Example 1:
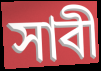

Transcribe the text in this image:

সাবী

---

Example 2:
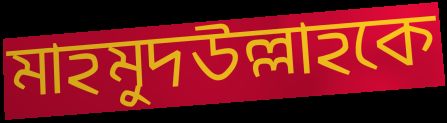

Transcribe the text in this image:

মাহমুদউল্লাহকে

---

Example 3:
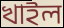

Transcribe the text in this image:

খাইল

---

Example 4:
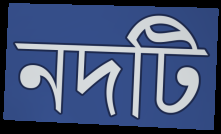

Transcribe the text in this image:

নদটি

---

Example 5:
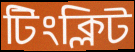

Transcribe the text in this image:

টিংক্লিট